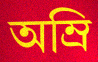
অম্রি